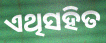
ଏଥିସହିତ